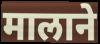
मालाने